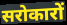
सरोकारों